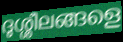
ദുശ്ശീലങ്ങളെ